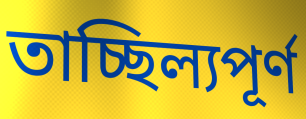
তাচ্ছিল্যপূর্ণ